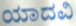
ಯಾದವಿ